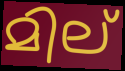
മില്